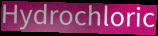
Hydrochloric